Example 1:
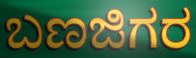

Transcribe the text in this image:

ಬಣಜಿಗರ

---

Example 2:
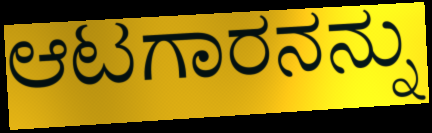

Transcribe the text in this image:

ಆಟಗಾರನನ್ನು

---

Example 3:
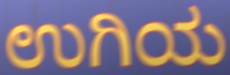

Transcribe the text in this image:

ಉಗಿಯ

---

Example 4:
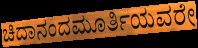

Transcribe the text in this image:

ಚಿದಾನಂದಮೂರ್ತಿಯವರೇ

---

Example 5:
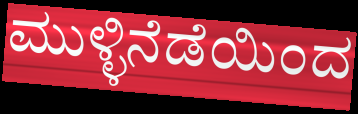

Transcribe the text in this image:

ಮುಳ್ಳಿನೆಡೆಯಿಂದ